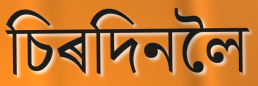
চিৰদিনলৈ